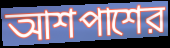
আশপাশের